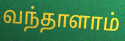
வந்தாளாம்